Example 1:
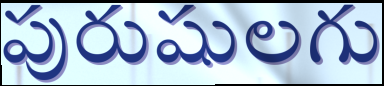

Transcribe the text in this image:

పురుషులగు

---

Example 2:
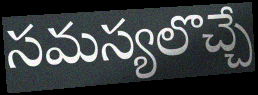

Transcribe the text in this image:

సమస్యలొచ్చే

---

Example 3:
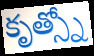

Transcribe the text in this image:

కృత్స్నో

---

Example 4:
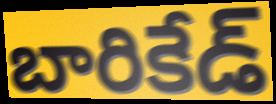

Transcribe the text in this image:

బారికేడ్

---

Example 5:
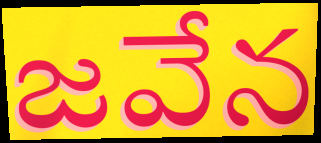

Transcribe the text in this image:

జవేన